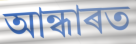
আন্ধাৰত